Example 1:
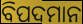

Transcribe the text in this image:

ବିପଦମାନ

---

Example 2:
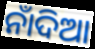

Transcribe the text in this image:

ନାଁଦିଆ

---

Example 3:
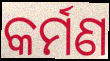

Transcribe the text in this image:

କର୍ମଣ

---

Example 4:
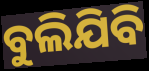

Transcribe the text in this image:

ବୁଲିଯିବି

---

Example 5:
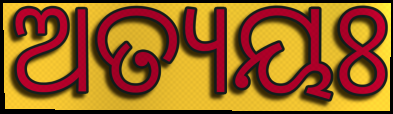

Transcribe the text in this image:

ଅତ୍ୟୟଃ